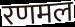
रणमल